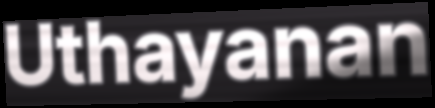
Uthayanan